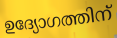
ഉദ്യോഗത്തിന്